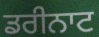
ਡਰੀਨਾਟ